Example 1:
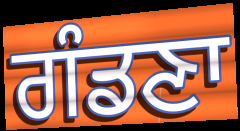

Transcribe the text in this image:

ਗੰਡਣਾ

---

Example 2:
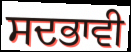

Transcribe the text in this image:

ਸਦਭਾਵੀ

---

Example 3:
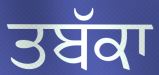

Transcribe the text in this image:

ਤਬੱਕਾ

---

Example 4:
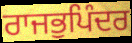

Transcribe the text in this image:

ਰਾਜਭੁਪਿੰਦਰ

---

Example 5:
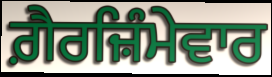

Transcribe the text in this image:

ਗ਼ੈਰਜ਼ਿੰਮੇਵਾਰ